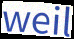
weil